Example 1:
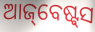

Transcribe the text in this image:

ଆଜ୍‌ବେଷ୍ଟ୍‌ସ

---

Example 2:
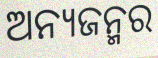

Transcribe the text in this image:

ଅନ୍ୟଜନ୍ମର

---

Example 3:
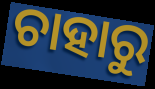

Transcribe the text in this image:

ଚାହାରୁ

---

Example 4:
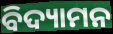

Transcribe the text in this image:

ବିଦ୍ୟାମନ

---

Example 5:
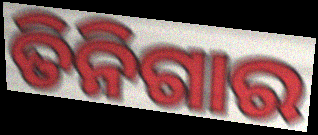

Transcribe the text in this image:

ତିନିଗାର